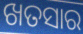
ଖତସାର